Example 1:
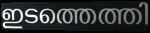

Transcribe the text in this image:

ഇടത്തെത്തി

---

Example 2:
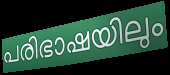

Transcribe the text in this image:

പരിഭാഷയിലും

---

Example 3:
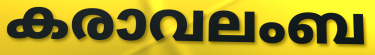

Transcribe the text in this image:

കരാവലംബ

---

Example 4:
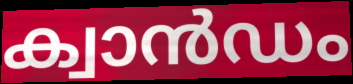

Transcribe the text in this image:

ക്വാൻഡം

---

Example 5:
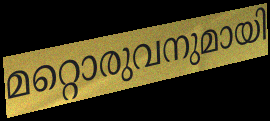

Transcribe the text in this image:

മറ്റൊരുവനുമായി